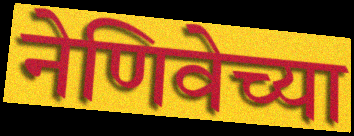
नेणिवेच्या